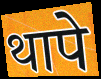
थापे